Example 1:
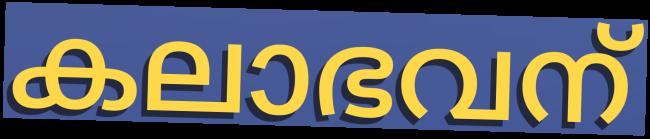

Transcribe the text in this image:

കലാഭവന്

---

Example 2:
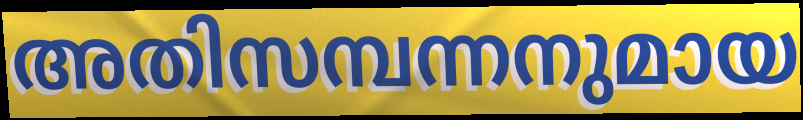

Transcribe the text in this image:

അതിസമ്പന്നനുമായ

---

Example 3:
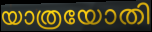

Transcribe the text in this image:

യാത്രയോതി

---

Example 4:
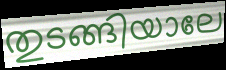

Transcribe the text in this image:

തുടങ്ങിയാലേ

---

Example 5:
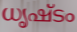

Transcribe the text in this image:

ധൃഷ്ടം